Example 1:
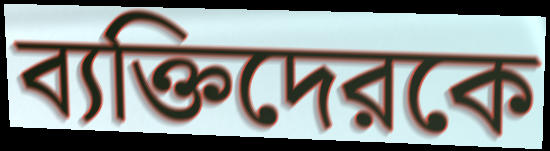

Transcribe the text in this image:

ব্যক্তিদেরকে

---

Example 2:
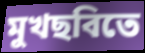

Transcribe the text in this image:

মুখছবিতে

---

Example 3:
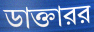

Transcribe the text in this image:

ডাক্তারর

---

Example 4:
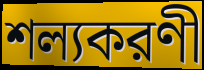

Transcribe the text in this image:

শল্যকরণী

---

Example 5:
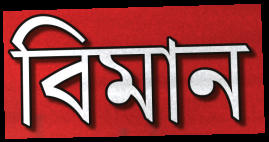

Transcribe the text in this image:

বিমান